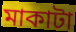
মাকাটা